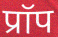
प्रॉप